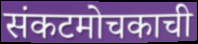
संकटमोचकाची